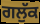
ਗਲੁੱਕ